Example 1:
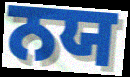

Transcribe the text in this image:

ਨਯ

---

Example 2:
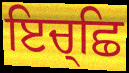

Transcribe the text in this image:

ਇਚ੍ਛਿ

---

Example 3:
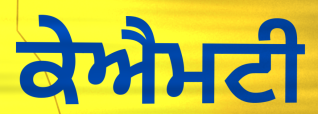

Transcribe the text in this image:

ਕੇਐਮਟੀ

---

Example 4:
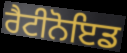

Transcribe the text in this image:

ਰੈਟੀਨੋਇਡ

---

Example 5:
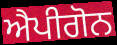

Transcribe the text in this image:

ਐਪੀਗੋਨ